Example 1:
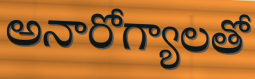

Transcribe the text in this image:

అనారోగ్యాలతో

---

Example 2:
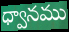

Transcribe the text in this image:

ధ్వానము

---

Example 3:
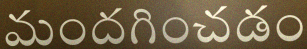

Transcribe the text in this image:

మందగించడం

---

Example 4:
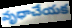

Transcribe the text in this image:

వృధాచేయక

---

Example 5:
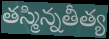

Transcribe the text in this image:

తస్మిన్నతీత్య